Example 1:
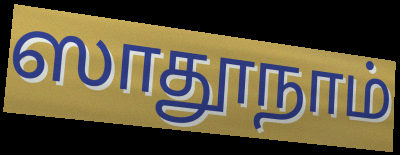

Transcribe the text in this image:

ஸாதூநாம்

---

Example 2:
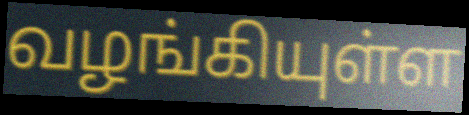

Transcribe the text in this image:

வழங்கியுள்ள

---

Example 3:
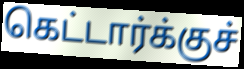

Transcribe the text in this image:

கெட்டார்க்குச்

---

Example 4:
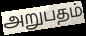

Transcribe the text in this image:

அறுபதம்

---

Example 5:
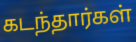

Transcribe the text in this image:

கடந்தார்கள்